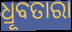
ଧ୍ରୂବତାରା